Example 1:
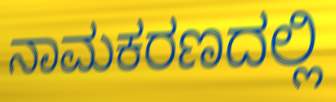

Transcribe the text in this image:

ನಾಮಕರಣದಲ್ಲಿ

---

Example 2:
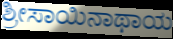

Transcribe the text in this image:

ಶ್ರೀಸಾಯಿನಾಥಾಯ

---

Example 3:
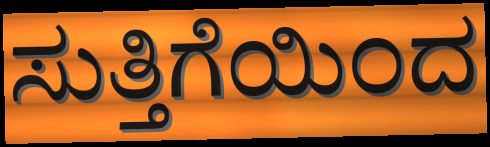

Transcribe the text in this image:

ಸುತ್ತಿಗೆಯಿಂದ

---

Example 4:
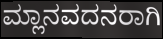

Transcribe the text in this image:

ಮ್ಲಾನವದನರಾಗಿ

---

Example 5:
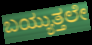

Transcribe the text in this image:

ಬಯ್ಯುತ್ತಲೇ